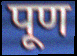
पूण